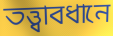
তত্ত্বাবধানে